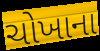
ચોખાના